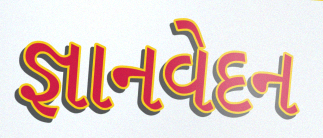
જ્ઞાનવેદન